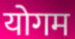
योगम